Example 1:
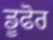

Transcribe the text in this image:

ਡੂਫੋਰ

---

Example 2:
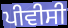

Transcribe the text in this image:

ਪੀਵੀਸੀ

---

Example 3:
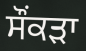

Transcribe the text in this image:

ਸੌਂਕੜਾ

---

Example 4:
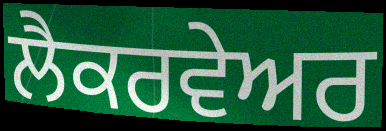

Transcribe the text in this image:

ਲੈਕਰਵੇਅਰ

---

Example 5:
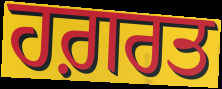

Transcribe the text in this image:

ਹਗ਼ਰਤ